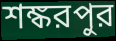
শঙ্করপুর